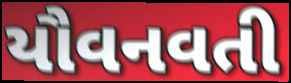
યૌવનવતી